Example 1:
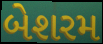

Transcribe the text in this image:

બેશરમ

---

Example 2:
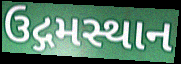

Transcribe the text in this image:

ઉદ્ગમસ્થાન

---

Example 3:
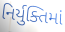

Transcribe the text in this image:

નિર્યુક્તિમાં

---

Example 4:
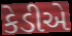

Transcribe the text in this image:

કેડીએ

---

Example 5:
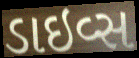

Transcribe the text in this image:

ડાઇવ્સ